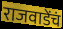
राजवाडेंचं